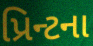
પ્રિન્ટના